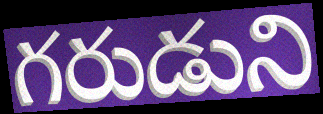
గరుడుని